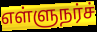
எள்ளுநர்ச்